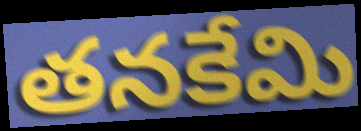
తనకేమి